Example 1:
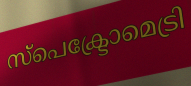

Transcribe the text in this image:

സ്പെക്ട്രോമെട്രി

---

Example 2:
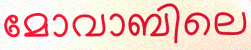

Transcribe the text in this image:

മോവാബിലെ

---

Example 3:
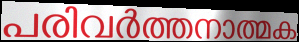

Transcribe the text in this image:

പരിവർത്തനാത്മക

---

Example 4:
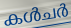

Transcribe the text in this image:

കൾചർ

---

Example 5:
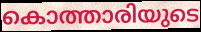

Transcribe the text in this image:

കൊത്താരിയുടെ